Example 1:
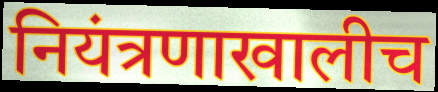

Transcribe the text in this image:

नियंत्रणाखालीच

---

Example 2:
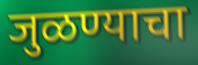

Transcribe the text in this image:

जुळण्याचा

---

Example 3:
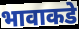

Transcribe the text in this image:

भावाकडे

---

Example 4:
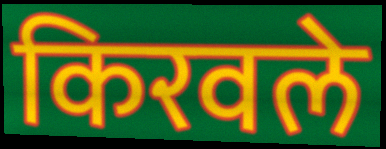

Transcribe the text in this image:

किरवले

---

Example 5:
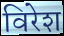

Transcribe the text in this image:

विरेश